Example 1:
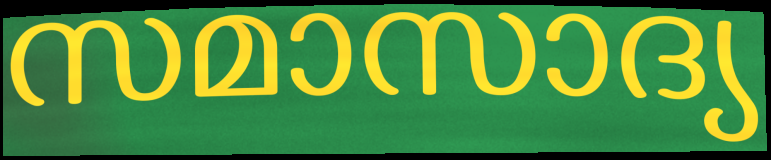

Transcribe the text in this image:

സമാസാദ്യ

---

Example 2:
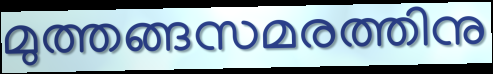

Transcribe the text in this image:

മുത്തങ്ങസമരത്തിനു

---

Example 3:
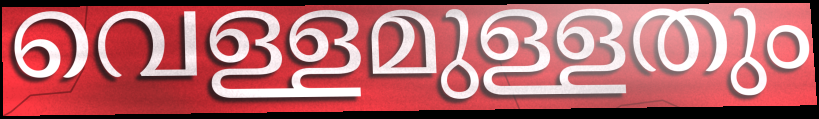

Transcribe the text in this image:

വെള്ളമുള്ളതും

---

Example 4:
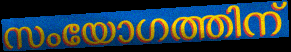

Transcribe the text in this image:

സംയോഗത്തിന്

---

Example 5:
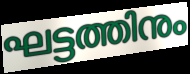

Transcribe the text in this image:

ഘട്ടത്തിനും